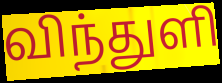
விந்துளி